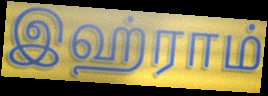
இஹ்ராம்